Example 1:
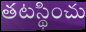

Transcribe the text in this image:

తటస్థించు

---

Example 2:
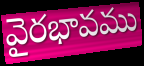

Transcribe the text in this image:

వైరభావము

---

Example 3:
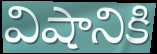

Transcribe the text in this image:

విషానికి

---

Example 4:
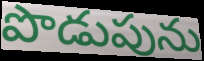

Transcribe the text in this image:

పొడుపును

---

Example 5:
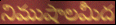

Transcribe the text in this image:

నిముషాలమీద